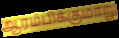
ஆரம்பிக்குமாறு